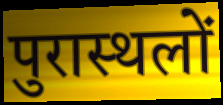
पुरास्थलों